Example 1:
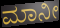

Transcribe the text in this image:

ಮಾನೀ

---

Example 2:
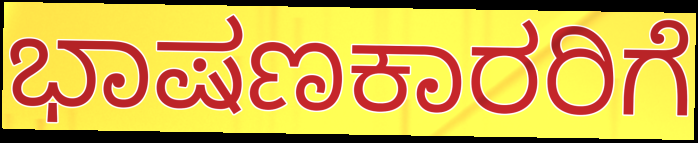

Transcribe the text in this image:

ಭಾಷಣಕಾರರಿಗೆ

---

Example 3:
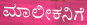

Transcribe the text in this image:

ಮಾಲೀಕನಿಗೆ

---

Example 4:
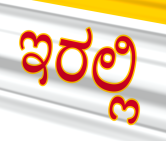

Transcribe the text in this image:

ಇರಲ್ಲಿ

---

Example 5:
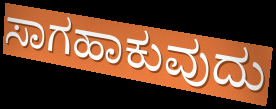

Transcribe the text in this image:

ಸಾಗಹಾಕುವುದು